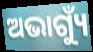
ଅଭାଗ୍ୟୁଁ